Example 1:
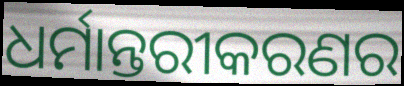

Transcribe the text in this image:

ଧର୍ମାନ୍ତରୀକରଣର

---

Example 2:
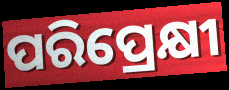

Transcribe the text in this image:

ପରିପ୍ରେକ୍ଷୀ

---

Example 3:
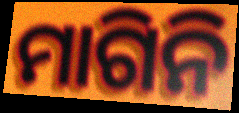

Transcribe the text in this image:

ମାଗିନି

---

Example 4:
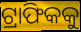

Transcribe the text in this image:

ଟ୍ରାଫିକକୁ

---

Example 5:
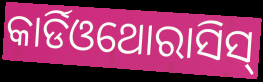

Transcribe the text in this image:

କାର୍ଡିଓଥୋରାସିସ୍